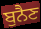
ਬੁਨੈਣ